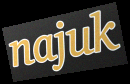
najuk